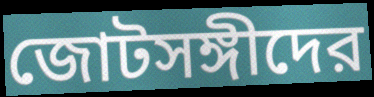
জোটসঙ্গীদের